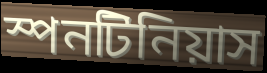
স্পনটিনিয়াস